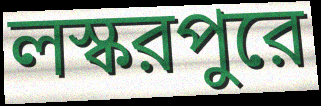
লস্করপুরে